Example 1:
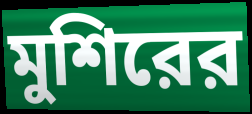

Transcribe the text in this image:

মুশিরের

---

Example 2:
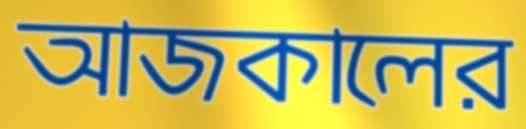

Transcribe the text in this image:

আজকালের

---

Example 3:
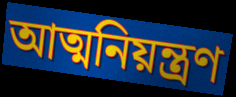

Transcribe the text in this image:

আত্মনিয়ন্ত্রণ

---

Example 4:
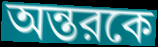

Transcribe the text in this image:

অন্তরকে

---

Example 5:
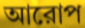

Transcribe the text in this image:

আরোপ